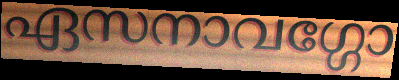
ഏസനാവഗ്ഗോ